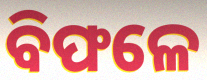
ବିଫଳେ